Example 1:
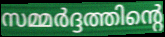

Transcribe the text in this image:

സമ്മർദ്ദത്തിന്റെ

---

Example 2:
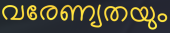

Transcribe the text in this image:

വരേണ്യതയും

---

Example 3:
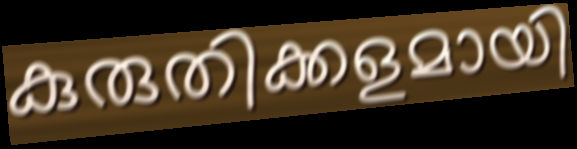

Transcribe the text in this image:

കുരുതിക്കളമായി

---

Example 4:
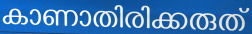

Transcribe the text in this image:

കാണാതിരിക്കരുത്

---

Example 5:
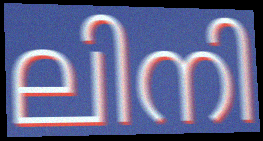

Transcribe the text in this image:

ലിനി